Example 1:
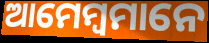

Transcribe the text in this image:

ଆମେମ୍ବମାନେ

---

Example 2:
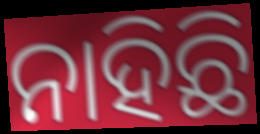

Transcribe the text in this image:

ନାହିଛି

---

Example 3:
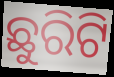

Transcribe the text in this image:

ଛୁରିଟି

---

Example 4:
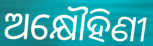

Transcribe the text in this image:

ଅକ୍ଷୌହିଣୀ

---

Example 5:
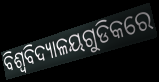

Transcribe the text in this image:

ବିଶ୍ଵବିଦ୍ୟାଳୟଗୁଡିକରେ